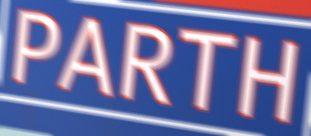
PARTH